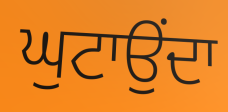
ਘੁਟਾਉਂਦਾ